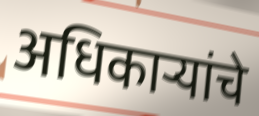
अधिकाऱ्यांचे